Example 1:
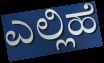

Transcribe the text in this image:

ಎಲ್ಲಿಹೆ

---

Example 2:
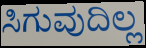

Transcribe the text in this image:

ಸಿಗುವುದಿಲ್ಲ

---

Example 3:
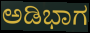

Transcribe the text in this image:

ಅಡಿಭಾಗ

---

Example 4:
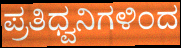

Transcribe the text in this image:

ಪ್ರತಿಧ್ವನಿಗಳಿಂದ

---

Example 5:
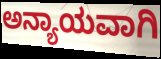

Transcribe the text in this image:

ಅನ್ಯಾಯವಾಗಿ